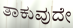
ತಾಕುವುದೇ